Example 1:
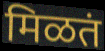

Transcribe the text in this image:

मिळतं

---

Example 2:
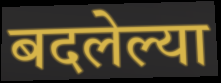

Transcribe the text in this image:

बदलेल्या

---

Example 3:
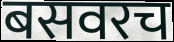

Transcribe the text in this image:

बसवरच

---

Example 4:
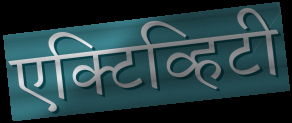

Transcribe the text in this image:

एक्टिव्हिटी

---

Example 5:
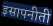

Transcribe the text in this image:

इसापनीती